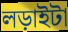
লড়াইটা